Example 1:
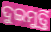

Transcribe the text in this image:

ଦୁଇମୁର୍ତ୍ତି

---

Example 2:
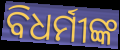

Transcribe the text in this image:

ବିଧର୍ମୀଙ୍କ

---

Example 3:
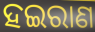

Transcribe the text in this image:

ହଇରାଣ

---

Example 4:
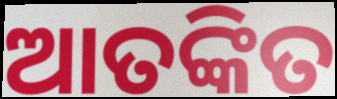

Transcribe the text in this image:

ଆତଙ୍କିତ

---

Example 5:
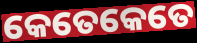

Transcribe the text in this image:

କେତେକେତେ